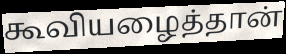
கூவியழைத்தான்